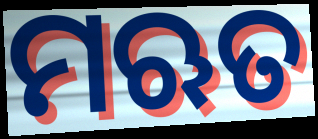
ମଋତ